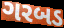
ગરબડ